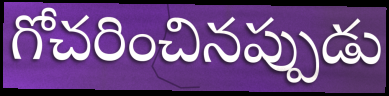
గోచరించినప్పుడు